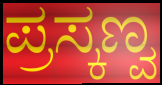
ಪ್ರಸ್ಕಣ್ವ